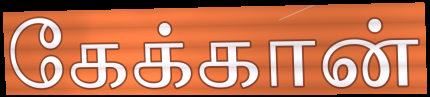
கேக்கான்